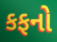
કફનો